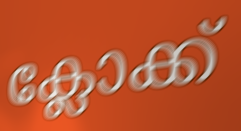
ക്ലോക്ക്